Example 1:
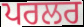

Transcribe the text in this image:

ਪਰਲਰ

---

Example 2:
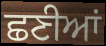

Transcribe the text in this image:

ਛਣੀਆਂ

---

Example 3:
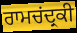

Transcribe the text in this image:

ਰਾਮਚਂਦ੍ਰਕੀ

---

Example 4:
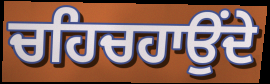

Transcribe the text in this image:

ਚਹਿਚਹਾਉਂਦੇ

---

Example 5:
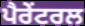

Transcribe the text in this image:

ਪੈਰੇਂਟਰਲ